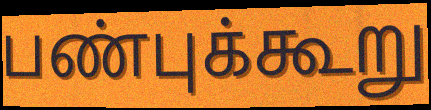
பண்புக்கூறு